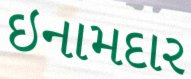
ઇનામદાર